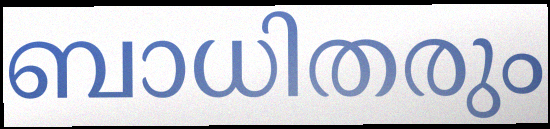
ബാധിതരും